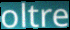
oltre